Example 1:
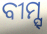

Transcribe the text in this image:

ବୀମ୍ସ୍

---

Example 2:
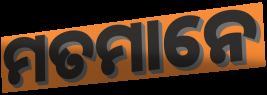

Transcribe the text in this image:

ମତମାନେ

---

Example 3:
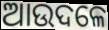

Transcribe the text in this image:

ଆଉଦଳେ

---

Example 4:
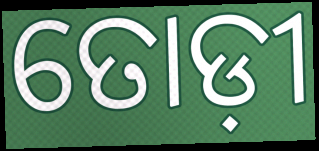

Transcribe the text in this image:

ତୋଡ଼ୀ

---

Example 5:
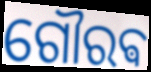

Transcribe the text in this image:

ଗୌରଵ